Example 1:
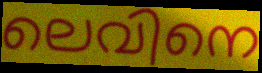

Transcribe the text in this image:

ലെവിനെ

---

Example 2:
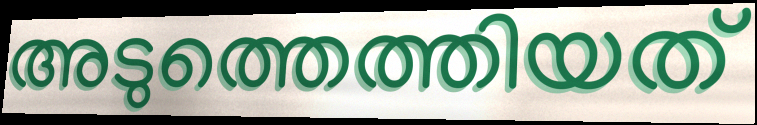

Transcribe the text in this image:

അടുത്തെത്തിയത്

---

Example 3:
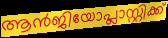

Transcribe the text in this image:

ആൻജിയോപ്ലാസ്റ്റിക്ക്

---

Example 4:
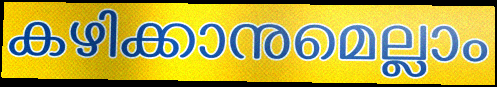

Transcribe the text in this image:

കഴിക്കാനുമെല്ലാം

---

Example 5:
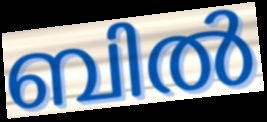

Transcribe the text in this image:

ബിൽ